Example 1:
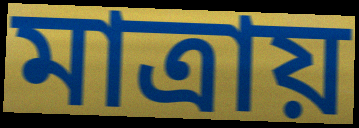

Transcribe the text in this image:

মাত্রায়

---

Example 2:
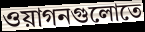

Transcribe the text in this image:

ওয়াগনগুলোতে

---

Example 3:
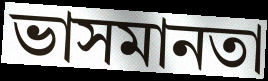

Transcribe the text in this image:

ভাসমানতা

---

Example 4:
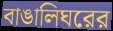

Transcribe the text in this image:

বাঙালিঘরের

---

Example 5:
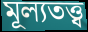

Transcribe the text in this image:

মূল্যতত্ত্ব